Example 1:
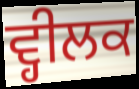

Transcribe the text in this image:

ਵ੍ਹੀਲਕ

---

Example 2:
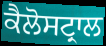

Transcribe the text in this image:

ਕੈਲੋਸਟ੍ਰਾਲ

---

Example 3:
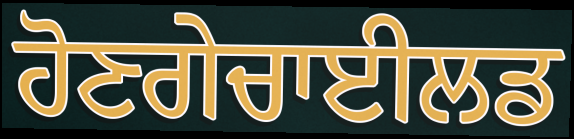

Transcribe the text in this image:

ਹੋਣਗੇਚਾਈਲਡ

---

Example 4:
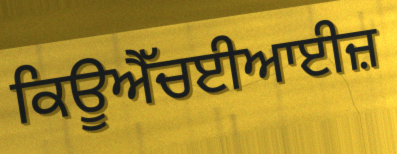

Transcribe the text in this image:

ਕਿਊਐੱਚਈਆਈਜ਼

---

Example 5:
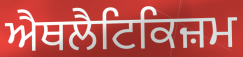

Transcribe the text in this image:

ਐਥਲੈਟਿਕਿਜ਼ਮ